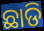
ଛାଡି